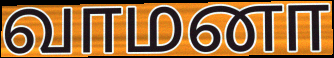
வாமனா